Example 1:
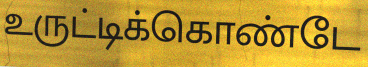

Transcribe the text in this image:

உருட்டிக்கொண்டே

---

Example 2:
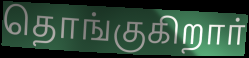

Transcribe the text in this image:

தொங்குகிறார்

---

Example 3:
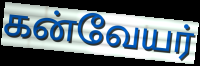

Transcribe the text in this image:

கன்வேயர்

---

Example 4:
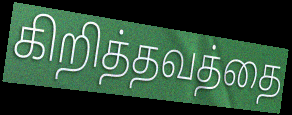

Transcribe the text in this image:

கிறித்தவத்தை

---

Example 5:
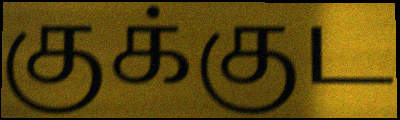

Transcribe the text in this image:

குக்குட